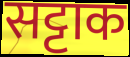
सट्टाक